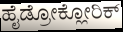
ಹೈಡ್ರೋಕ್ಲೋರಿಕ್